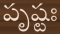
పృష్టః